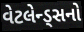
વેટલેન્ડ્સનો